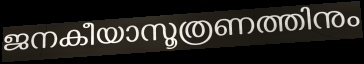
ജനകീയാസൂത്രണത്തിനും